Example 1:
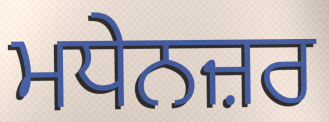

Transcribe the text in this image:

ਮਧੇਨਜ਼ਰ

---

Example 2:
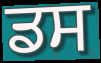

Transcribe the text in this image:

ਡਸ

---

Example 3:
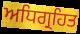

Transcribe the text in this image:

ਅਧਿਗ੍ਰਹਿਤ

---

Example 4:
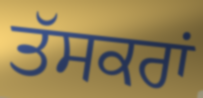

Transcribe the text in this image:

ਤੱਸਕਰਾਂ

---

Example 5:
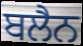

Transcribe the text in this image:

ਬਲੈਨ